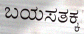
ಬಯಸತಕ್ಕ